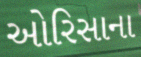
ઓરિસાના